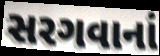
સરગવાનાં